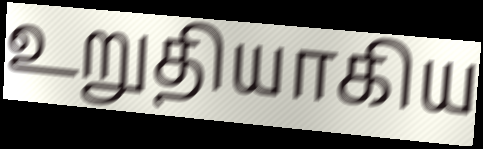
உறுதியாகிய